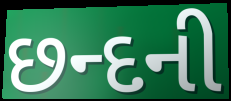
છન્દની